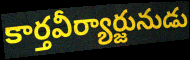
కార్తవీర్యార్జునుడు